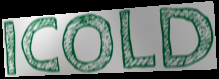
ICOLD